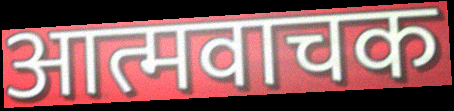
आत्मवाचक